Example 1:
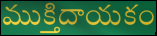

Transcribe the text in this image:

ముక్తిదాయకం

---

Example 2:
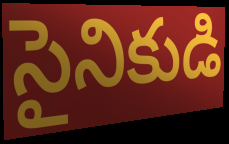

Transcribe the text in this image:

సైనికుడి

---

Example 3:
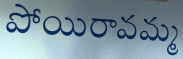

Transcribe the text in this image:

పోయిరావమ్మ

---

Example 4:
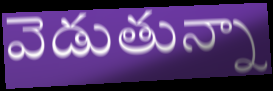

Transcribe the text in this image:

వెడుతున్నా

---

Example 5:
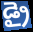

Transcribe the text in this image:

డ్రై